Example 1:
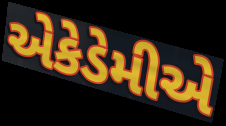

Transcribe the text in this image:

એકેડેમીએ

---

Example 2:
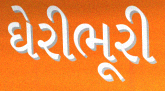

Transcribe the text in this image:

ઘેરીભૂરી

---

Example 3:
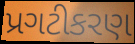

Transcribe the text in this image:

પ્રગટીકરણ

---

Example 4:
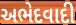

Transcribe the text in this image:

અભેદવાદી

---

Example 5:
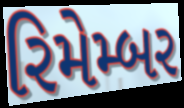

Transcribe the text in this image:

રિમેમ્બર